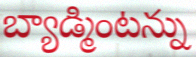
బ్యాడ్మింటన్ను